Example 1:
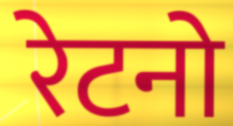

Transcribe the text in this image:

रेटनो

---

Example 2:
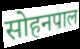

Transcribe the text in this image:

सोहनपाल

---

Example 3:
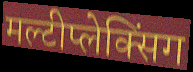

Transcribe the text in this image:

मल्टीप्लेक्सिंग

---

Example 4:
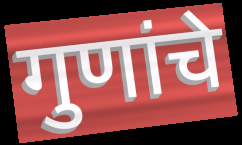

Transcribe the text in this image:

गुणांचे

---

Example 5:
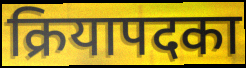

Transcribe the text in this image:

क्रियापदका